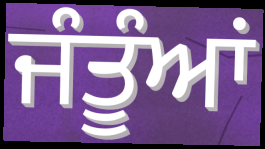
ਜੰਤੂੰਆਂ